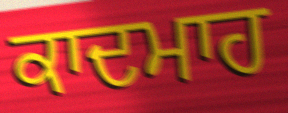
ਕਾਦਮਾਹ